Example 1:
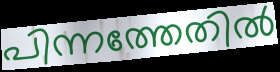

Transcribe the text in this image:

പിന്നത്തേതിൽ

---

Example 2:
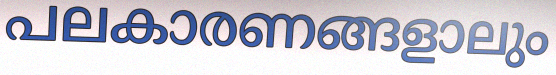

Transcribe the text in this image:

പലകാരണങ്ങളാലും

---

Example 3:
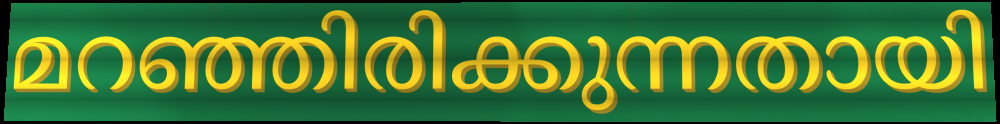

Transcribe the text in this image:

മറഞ്ഞിരിക്കുന്നതായി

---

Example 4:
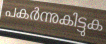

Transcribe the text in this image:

പകർന്നുകിട്ടുക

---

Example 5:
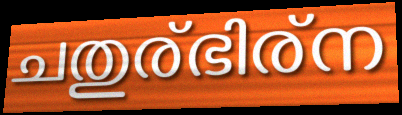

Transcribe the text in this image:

ചതുര്ഭിര്ന